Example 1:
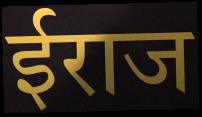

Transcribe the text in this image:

ईराज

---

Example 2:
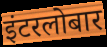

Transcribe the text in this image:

इंटरलोबार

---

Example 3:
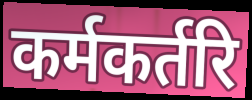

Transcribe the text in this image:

कर्मकर्तरि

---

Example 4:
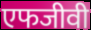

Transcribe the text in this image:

एफजीवी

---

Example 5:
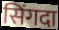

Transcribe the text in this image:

सिंगदा